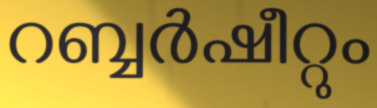
റബ്ബർഷീറ്റും